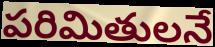
పరిమితులనే